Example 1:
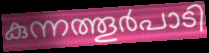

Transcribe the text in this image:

കുന്നത്തൂർപാടി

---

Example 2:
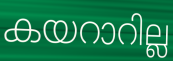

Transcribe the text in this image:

കയറാറില്ല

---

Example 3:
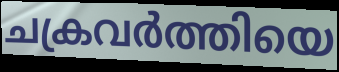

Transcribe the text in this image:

ചക്രവർത്തിയെ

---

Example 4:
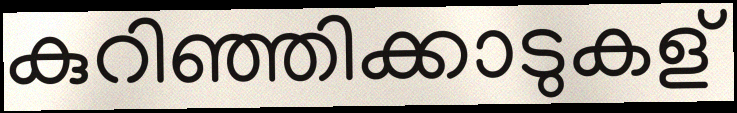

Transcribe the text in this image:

കുറിഞ്ഞിക്കാടുകള്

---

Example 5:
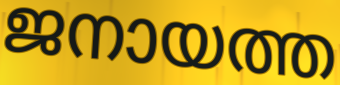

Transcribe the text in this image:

ജനായത്ത